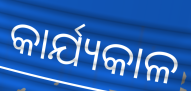
କାର୍ଯ୍ୟକାଳ